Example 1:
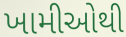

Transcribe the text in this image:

ખામીઓથી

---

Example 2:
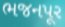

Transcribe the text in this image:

ભજનપૂર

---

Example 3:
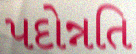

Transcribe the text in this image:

પદોન્નતિ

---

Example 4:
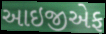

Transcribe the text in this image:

આઇજીએફ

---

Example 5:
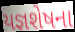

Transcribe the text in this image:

યજ્ઞશેષના